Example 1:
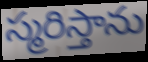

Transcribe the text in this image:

స్మరిస్తాను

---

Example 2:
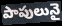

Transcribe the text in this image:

పాపులునై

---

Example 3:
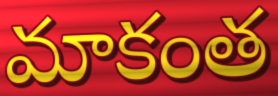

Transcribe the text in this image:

మాకంత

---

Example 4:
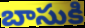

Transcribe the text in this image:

బాసుకి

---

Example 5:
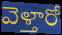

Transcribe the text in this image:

వెళ్తారో